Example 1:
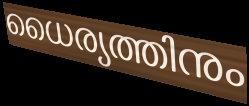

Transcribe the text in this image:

ധൈര്യത്തിനും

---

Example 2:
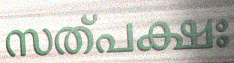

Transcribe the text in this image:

സത്പക്ഷഃ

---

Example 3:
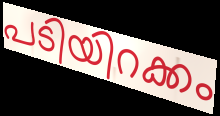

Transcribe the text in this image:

പടിയിറക്കം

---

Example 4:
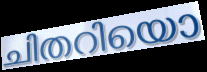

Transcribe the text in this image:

ചിതറിയൊ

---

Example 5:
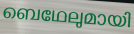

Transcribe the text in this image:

ബെഥേലുമായി